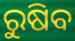
ରୁଷିବ